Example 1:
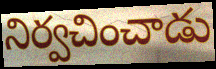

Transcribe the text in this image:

నిర్వచించాడు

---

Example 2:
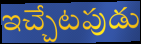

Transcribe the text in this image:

ఇచ్చేటపుడు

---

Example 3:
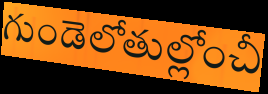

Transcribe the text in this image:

గుండెలోతుల్లోంచీ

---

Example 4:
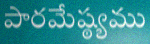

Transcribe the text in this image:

పారమేష్ఠ్యము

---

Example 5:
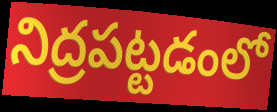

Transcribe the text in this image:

నిద్రపట్టడంలో